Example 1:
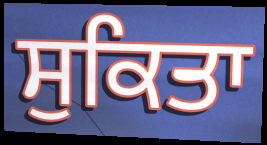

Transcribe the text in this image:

ਸੁਕਿਤਾ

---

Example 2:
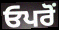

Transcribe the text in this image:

ਓਪਰੋਂ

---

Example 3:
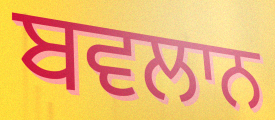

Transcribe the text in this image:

ਬਵਲਾਨ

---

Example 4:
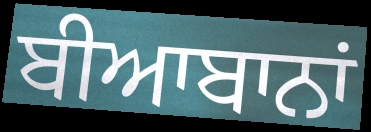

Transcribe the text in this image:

ਬੀਆਬਾਨਾਂ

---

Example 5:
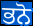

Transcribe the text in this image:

ਭਨੋ